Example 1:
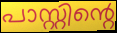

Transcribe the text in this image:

പാസ്റ്റിന്റെ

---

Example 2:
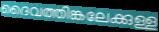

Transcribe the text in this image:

ദൈവത്തിങ്കലേക്കുള്ള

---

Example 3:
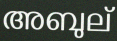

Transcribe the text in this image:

അബുല്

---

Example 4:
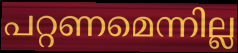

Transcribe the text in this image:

പറ്റണമെന്നില്ല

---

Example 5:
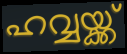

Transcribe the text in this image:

ഹവ്വയ്ക്ക്